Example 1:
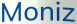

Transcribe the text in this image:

Moniz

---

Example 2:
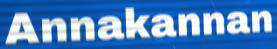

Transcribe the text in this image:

Annakannan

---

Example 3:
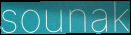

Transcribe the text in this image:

sounak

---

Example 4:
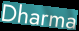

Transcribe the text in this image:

Dharma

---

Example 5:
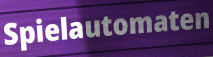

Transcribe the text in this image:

Spielautomaten